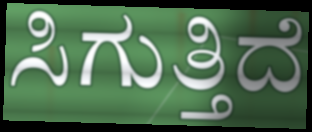
ಸಿಗುತ್ತಿದೆ